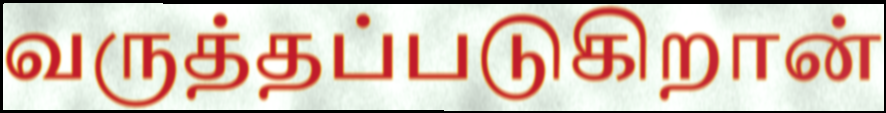
வருத்தப்படுகிறான்